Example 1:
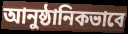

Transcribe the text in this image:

আনুষ্ঠানিকভাবে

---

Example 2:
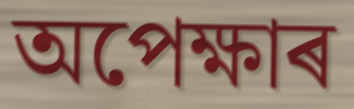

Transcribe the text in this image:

অপেক্ষাৰ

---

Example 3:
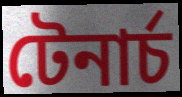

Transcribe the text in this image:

টেনাৰ্চ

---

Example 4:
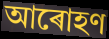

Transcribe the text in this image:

আৰোহণ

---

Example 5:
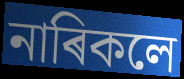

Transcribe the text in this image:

নাৰিকলে